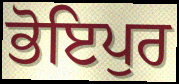
ਭੋਇਪੁਰ